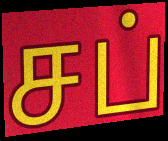
சப்